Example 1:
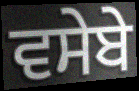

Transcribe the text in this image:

ਵਸੇਬੇ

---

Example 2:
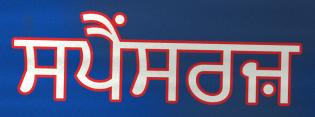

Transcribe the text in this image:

ਸਪੈਂਸਰਜ਼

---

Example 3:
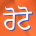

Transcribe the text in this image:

ਰੋਟੋ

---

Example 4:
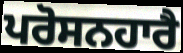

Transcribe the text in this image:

ਪਰੋਸਨਹਾਰੈ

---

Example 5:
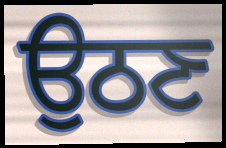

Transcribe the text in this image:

ਉਠਣ